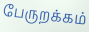
பேருறக்கம்